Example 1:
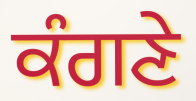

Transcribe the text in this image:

ਕੰਗਣੇ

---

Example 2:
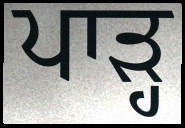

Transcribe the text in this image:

ਪਾੜ੍ਹ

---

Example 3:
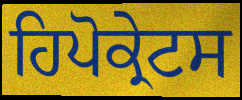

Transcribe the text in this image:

ਹਿਪੋਕ੍ਰੇਟਸ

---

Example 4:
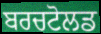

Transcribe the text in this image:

ਬਰਚਟੋਲਡ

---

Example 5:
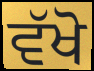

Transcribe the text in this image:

ਵੱਖੋ